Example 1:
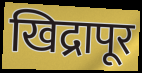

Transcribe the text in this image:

खिद्रापूर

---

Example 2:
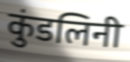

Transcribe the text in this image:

कुंडलिनी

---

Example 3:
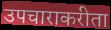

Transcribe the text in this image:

उपचाराकरीता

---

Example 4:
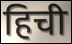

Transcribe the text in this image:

हिची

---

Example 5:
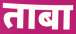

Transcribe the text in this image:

ताबा